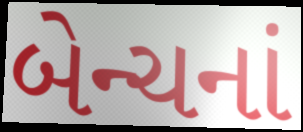
બેન્ચનાં